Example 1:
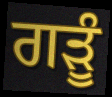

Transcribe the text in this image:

ਗੜੂੰ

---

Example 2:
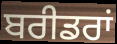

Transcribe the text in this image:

ਬਰੀਡਰਾਂ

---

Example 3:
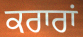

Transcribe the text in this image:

ਕਰਾਰਾਂ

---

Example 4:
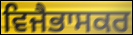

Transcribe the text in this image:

ਵਿਜੈਭਾਸਕਰ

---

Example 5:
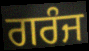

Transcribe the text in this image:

ਗਰੰਜ